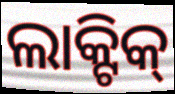
ଲାକ୍ଟିକ୍